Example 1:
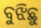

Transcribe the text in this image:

ବୁଝିଛୁ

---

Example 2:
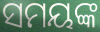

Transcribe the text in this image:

ସମୟଙ୍କ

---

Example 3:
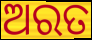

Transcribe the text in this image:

ଅରତ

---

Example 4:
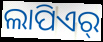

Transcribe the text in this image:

ଲାପିଏର୍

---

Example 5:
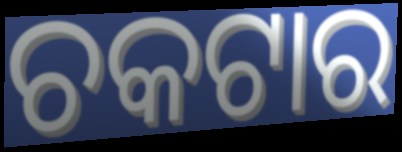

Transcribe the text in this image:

ଚକଟାର